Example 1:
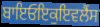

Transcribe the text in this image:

ਬਾਇਓਇਕੁਇਵਲੈਂਸ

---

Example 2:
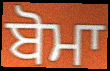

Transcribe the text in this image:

ਬੋਮਾ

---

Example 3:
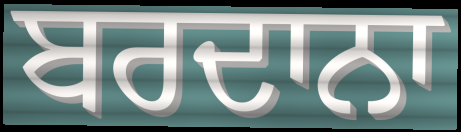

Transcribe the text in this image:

ਬਰਦਾਨਾ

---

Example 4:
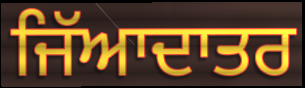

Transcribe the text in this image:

ਜਿੱਆਦਾਤਰ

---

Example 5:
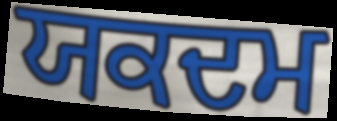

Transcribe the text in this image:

ਯਕਦਮ